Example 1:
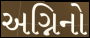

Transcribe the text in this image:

અગ્નિનો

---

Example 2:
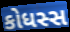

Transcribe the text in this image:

કોધસ્સ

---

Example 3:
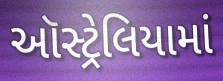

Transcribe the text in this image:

ઑસ્ટ્રેલિયામાં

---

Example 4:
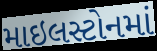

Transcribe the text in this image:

માઇલસ્ટોનમાં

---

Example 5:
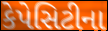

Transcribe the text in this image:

કેપેસિટીના